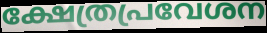
ക്ഷേത്രപ്രവേശന